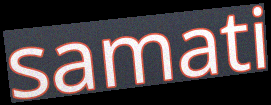
samati